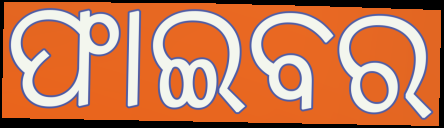
ଫାଇବର